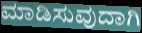
ಮಾಡಿಸುವುದಾಗಿ